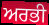
ਅਰਭੀ